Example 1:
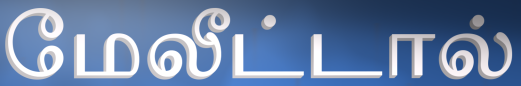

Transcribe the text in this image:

மேலீட்டால்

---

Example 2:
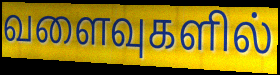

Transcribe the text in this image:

வளைவுகளில்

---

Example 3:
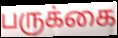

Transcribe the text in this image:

பருக்கை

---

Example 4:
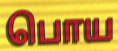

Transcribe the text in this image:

பொய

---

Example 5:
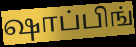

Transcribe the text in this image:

ஷாப்பிங்